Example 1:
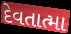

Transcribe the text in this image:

દેવતાત્મા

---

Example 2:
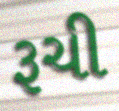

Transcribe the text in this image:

રૂચી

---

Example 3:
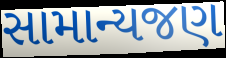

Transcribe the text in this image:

સામાન્યજણ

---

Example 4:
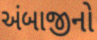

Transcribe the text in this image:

અંબાજીનો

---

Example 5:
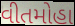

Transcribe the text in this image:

વીતમોહા